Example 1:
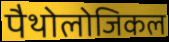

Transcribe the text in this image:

पैथोलोजिकल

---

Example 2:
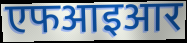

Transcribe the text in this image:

एफआइआर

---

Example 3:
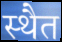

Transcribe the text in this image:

स्थैत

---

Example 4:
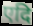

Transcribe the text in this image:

एदि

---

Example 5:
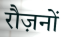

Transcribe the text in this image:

रौज़नों